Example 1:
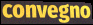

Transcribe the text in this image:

convegno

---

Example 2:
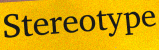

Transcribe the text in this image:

Stereotype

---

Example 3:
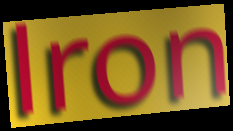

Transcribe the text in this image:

Iron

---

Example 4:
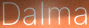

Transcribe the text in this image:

Dalma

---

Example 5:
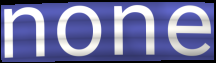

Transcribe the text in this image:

none